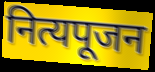
नित्यपूजन